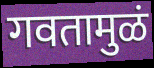
गवतामुळं